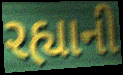
રહ્યાની